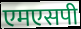
एमएसपी